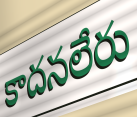
కాదనలేరు